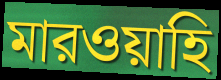
মারওয়াহি